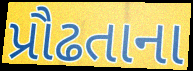
પ્રૌઢતાના